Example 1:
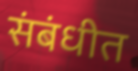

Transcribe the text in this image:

संबंधीत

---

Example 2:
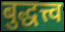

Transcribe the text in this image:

बुद्धत्त्व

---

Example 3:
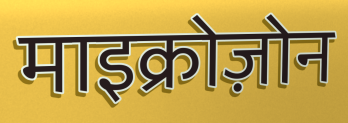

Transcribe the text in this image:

माइक्रोज़ोन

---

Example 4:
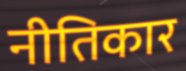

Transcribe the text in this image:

नीतिकार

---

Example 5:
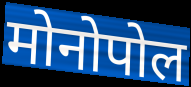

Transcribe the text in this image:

मोनोपोल